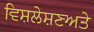
ਵਿਸ਼ਲੇਸ਼ਣਅਤੇ